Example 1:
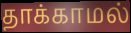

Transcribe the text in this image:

தாக்காமல்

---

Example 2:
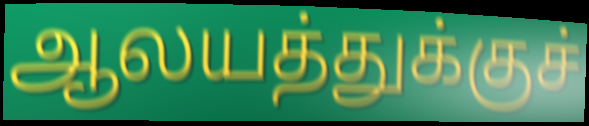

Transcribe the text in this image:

ஆலயத்துக்குச்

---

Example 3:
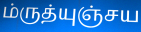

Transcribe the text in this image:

ம்ருத்யுஞ்சய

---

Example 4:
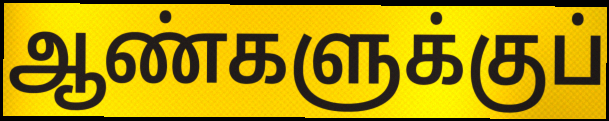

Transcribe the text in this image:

ஆண்களுக்குப்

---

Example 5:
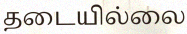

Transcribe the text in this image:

தடையில்லை